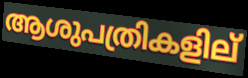
ആശുപത്രികളില്